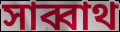
সাব্বাথ